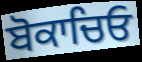
ਬੋਕਾਚਿਓ